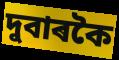
দুবাৰকৈ